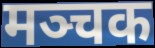
मञ्चक